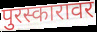
पुरस्कारावर